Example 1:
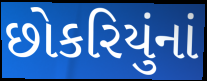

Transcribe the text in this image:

છોકરિયુંનાં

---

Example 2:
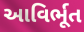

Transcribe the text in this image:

આવિર્ભૂત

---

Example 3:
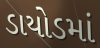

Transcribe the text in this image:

ડાયોડમાં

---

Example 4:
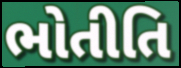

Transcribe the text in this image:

ભોતીતિ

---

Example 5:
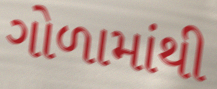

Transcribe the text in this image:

ગોળામાંથી